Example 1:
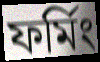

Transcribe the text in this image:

ফর্মিং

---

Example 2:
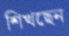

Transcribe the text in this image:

শিখছেন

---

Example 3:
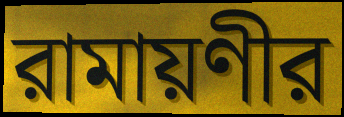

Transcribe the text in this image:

রামায়ণীর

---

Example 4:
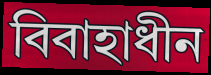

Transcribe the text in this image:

বিবাহাধীন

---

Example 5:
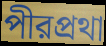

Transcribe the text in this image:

পীরপ্রথা